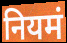
नियमं